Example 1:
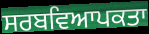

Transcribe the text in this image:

ਸਰਬਵਿਆਪਕਤਾ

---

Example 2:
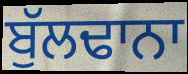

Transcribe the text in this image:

ਬੁੱਲਢਾਨਾ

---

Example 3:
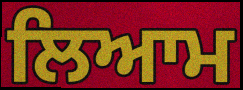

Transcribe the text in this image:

ਲਿਆਮ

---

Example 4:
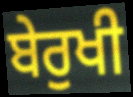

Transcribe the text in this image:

ਬੇਰੁਖੀ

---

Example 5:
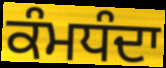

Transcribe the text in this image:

ਕੰਮਧੰਦਾ